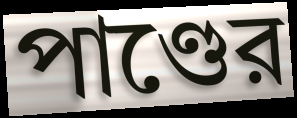
পাণ্ডের